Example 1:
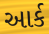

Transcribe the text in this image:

આર્ક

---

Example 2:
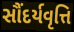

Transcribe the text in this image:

સૌંદર્યવૃત્તિ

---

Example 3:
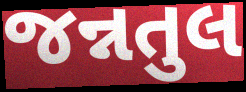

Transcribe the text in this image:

જન્નતુલ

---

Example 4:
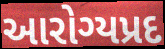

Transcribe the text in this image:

આરોગ્યપ્રદ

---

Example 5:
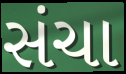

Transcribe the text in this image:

સંચા